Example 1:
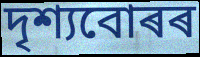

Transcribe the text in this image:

দৃশ্যবোৰৰ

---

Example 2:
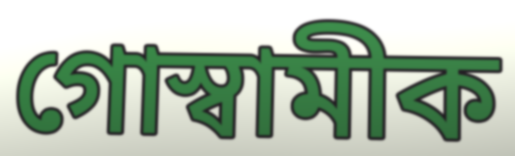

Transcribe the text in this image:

গোস্বামীক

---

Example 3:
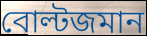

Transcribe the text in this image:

বোল্টজমান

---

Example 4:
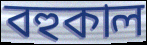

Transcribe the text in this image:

বহুকাল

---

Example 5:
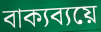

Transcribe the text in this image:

বাক্যব্যয়ে